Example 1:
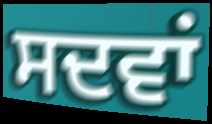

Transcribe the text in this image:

ਸਦਵਾਂ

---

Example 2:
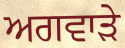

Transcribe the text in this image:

ਅਗਵਾੜੇ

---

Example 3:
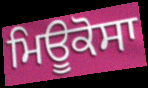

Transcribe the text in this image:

ਮਿਊਕੋਸਾ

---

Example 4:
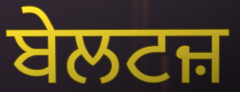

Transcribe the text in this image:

ਬੇਲਟਜ਼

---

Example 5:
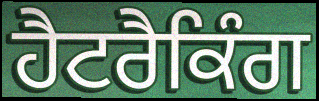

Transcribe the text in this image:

ਹੈਟਰੈਕਿੰਗ